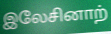
இலேசினாற்